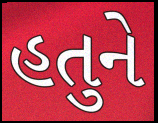
હતુને